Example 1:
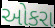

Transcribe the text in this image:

ઓકરા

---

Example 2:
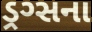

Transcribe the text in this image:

ડ્રગ્સના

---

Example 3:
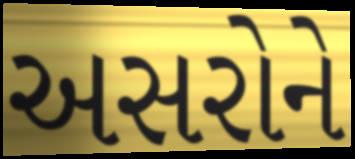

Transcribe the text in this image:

અસરોને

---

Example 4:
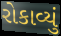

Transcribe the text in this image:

રોકાવ્યું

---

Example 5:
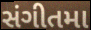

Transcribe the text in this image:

સંગીતમા